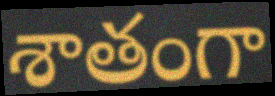
శాతంగా